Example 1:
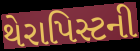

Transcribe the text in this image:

થેરાપિસ્ટની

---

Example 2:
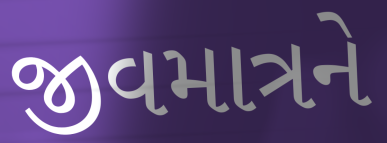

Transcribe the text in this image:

જીવમાત્રને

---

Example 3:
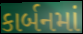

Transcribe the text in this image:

કાર્બનમાં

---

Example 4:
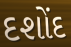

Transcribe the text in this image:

દશોંદ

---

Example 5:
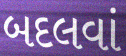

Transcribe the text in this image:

બદલવાં